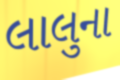
લાલુના